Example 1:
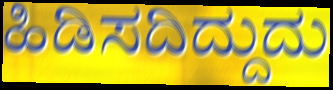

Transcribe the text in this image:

ಹಿಡಿಸದಿದ್ದುದು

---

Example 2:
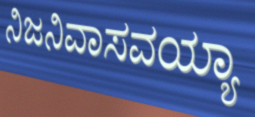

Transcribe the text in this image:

ನಿಜನಿವಾಸವಯ್ಯಾ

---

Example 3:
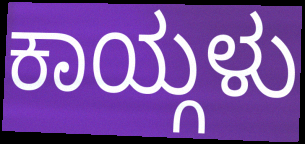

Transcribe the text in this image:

ಕಾಯ್ಗಳು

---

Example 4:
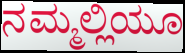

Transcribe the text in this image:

ನಮ್ಮಲ್ಲಿಯೂ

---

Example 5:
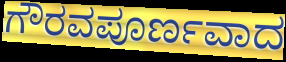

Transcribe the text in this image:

ಗೌರವಪೂರ್ಣವಾದ